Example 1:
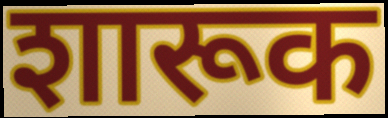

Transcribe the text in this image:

शारूक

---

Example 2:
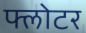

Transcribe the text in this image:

फ्लोटर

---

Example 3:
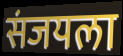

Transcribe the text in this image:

संजयला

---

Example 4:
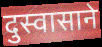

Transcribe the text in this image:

दुस्वासाने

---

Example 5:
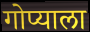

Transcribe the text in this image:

गोप्याला